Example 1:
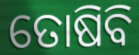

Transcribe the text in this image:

ତୋଷିବି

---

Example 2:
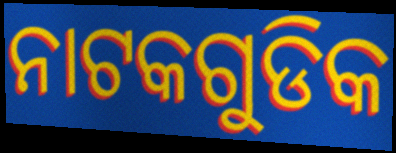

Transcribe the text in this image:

ନାଟକଗୁଡିକ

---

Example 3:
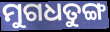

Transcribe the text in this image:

ମୁଗଧତୁଙ୍ଗ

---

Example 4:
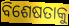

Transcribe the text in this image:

ବିଶେଷତାକୁ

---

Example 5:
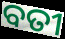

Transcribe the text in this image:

ବତୀ